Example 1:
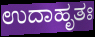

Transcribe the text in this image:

ಉದಾಹೃತಃ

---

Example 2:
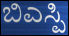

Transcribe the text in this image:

ಬಿಎಸ್ಪಿ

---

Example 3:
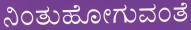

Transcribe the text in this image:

ನಿಂತುಹೋಗುವಂತೆ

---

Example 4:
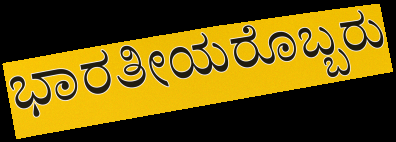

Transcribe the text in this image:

ಭಾರತೀಯರೊಬ್ಬರು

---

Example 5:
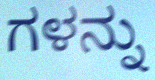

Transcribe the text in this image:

ಗಳನ್ನು